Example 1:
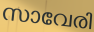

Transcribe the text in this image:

സാവേരി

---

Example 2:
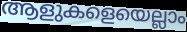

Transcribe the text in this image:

ആളുകളെയെല്ലാം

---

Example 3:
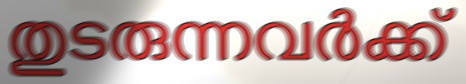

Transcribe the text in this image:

തുടരുന്നവർക്ക്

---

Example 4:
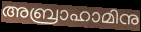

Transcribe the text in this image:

അബ്രാഹാമിനു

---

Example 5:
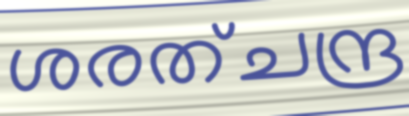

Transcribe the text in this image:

ശരത്ചന്ദ്ര